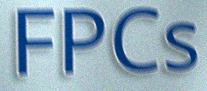
FPCs